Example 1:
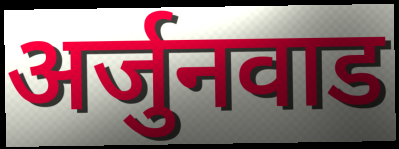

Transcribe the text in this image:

अर्जुनवाड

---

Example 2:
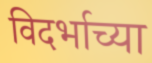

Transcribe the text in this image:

विदर्भाच्या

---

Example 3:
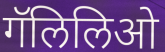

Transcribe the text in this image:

गॅलिलिओ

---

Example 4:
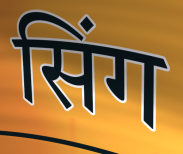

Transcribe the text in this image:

सिंग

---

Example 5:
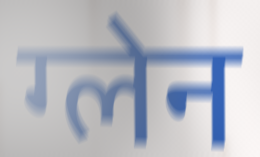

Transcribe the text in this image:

ग्लेन